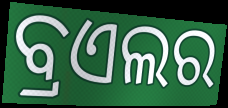
ବ୍ରଏଲର